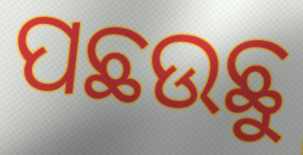
ପଛଉଛୁ